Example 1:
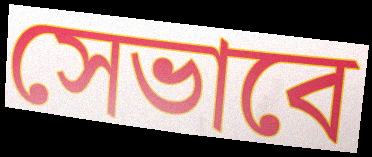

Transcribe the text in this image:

সেভাবে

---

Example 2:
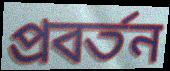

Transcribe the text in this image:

প্ৰবৰ্তন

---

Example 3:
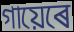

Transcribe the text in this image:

গায়েৰে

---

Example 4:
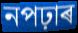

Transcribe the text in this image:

নপঢ়াৰ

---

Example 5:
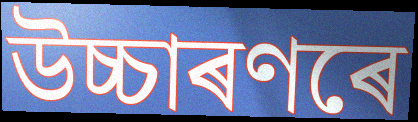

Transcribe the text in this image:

উচ্চাৰণৰে